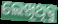
ଲେଖିଥିବୁ